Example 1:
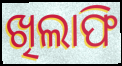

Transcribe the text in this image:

ଖିଲାଫି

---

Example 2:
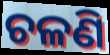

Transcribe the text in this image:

ଚଳଣି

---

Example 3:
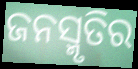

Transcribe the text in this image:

ଜନସ୍ମୃତିର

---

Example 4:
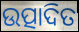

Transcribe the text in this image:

ଉତ୍ପାଦିତ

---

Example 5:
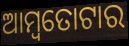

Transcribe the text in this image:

ଆମ୍ବତୋଟାର